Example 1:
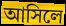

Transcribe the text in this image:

আসিলে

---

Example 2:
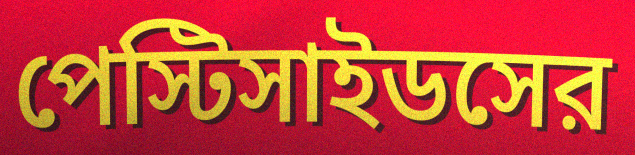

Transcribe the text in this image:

পেস্টিসাইডসের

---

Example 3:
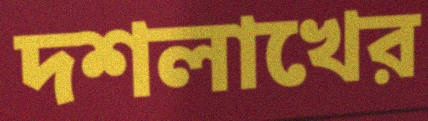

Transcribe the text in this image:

দশলাখের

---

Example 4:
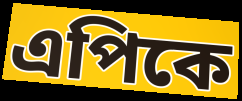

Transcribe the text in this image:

এপিকে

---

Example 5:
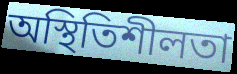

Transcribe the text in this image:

অস্থিতিশীলতা